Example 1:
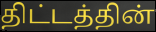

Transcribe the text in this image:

திட்டத்தின்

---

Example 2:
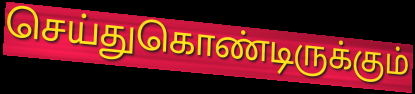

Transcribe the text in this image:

செய்துகொண்டிருக்கும்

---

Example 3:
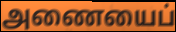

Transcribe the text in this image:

அணையைப்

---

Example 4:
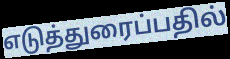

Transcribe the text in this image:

எடுத்துரைப்பதில்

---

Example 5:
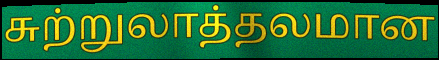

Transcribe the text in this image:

சுற்றுலாத்தலமான